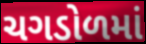
ચગડોળમાં